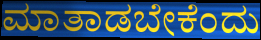
ಮಾತಾಡಬೇಕೆಂದು